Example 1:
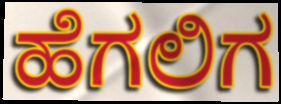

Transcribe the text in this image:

ಹೆಗಲಿಗ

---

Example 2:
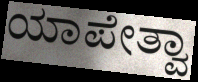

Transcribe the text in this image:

ಯಾಪೇತ್ವಾ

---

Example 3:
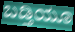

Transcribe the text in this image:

ಬಡ್ತಿಯೂ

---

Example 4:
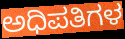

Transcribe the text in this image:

ಅಧಿಪತಿಗಳ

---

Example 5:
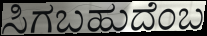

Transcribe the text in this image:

ಸಿಗಬಹುದೆಂಬ